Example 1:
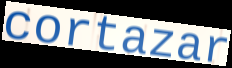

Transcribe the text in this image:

cortazar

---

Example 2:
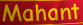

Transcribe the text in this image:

Mahant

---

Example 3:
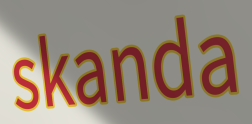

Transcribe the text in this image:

skanda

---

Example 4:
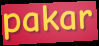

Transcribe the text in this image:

pakar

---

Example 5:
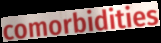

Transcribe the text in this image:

comorbidities